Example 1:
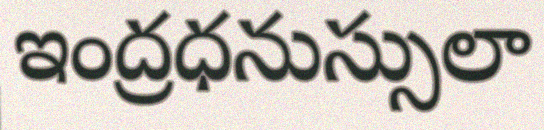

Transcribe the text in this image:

ఇంద్రధనుస్సులా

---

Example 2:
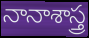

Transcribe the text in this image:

నానాశాస్త్ర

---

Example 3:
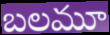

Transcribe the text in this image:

బలమూ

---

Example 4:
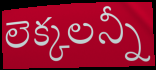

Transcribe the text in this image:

లెక్కలన్నీ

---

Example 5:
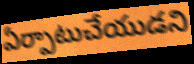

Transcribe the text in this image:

ఏర్పాటుచేయుడని